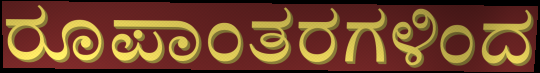
ರೂಪಾಂತರಗಳಿಂದ